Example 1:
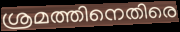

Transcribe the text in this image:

ശ്രമത്തിനെതിരെ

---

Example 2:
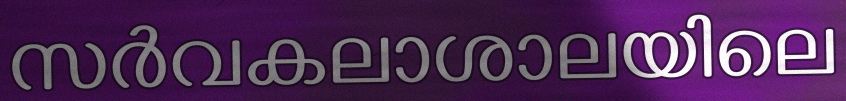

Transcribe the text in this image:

സർവകലാശാലയിലെ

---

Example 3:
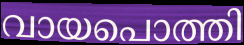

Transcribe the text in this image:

വായപൊത്തി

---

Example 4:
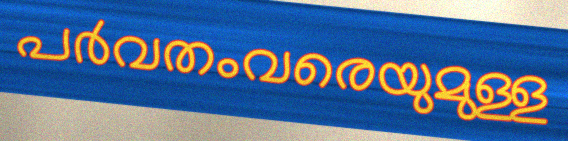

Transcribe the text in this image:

പർവതംവരെയുമുള്ള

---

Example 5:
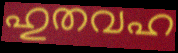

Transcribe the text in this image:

ഹുതവഹ